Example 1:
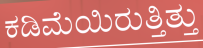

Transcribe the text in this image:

ಕಡಿಮೆಯಿರುತ್ತಿತ್ತು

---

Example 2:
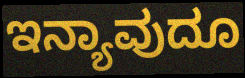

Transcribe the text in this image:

ಇನ್ಯಾವುದೂ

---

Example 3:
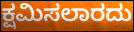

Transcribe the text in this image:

ಕ್ಷಮಿಸಲಾರದು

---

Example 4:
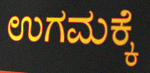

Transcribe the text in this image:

ಉಗಮಕ್ಕೆ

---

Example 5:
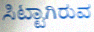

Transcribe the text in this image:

ಸಿಟ್ಟಾಗಿರುವ